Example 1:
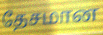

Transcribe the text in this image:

தேசமான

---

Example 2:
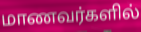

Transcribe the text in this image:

மாணவர்களில்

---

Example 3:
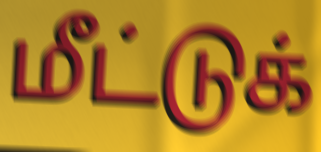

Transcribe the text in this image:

மீட்டுக்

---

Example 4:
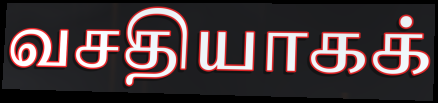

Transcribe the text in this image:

வசதியாகக்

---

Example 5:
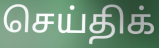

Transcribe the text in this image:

செய்திக்